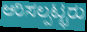
ಆರಿಸಲ್ಪಟ್ಟರು